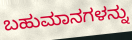
ಬಹುಮಾನಗಳನ್ನು